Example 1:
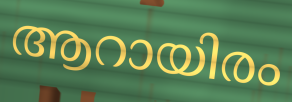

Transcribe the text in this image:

ആറായിരം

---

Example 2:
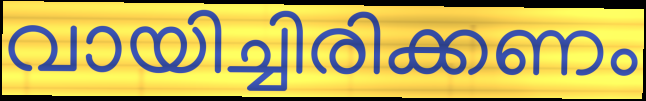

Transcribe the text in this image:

വായിച്ചിരിക്കണം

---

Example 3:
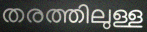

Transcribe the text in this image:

തരത്തിലുള്ള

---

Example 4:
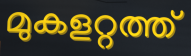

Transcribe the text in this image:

മുകളറ്റത്ത്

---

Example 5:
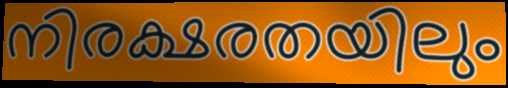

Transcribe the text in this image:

നിരക്ഷരതയിലും